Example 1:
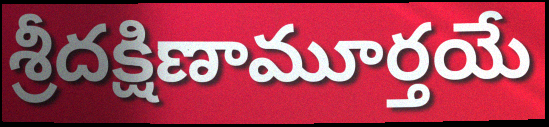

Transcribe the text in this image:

శ్రీదక్షిణామూర్తయే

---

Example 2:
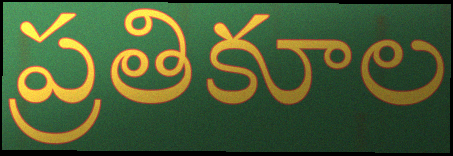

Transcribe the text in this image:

ప్రతికూల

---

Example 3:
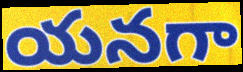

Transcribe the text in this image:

యనగా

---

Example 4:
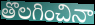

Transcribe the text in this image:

తొలగించినా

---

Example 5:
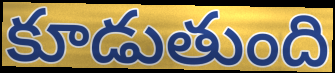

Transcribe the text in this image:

కూడుతుంది